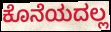
ಕೊನೆಯದಲ್ಲ